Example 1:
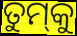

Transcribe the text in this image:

ତୁମ୍‌କୁ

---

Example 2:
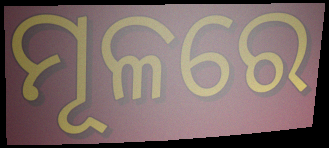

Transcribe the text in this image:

ମୂଳରେ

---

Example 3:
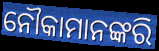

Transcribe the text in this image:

ନୌକାମାନଙ୍କରି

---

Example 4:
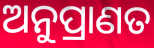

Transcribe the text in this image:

ଅନୁପ୍ରାଣତ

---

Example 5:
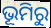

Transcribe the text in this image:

ଭୂମିରୁ